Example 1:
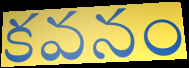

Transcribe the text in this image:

కవనం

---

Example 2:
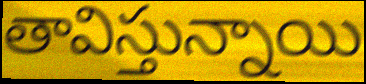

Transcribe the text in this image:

తావిస్తున్నాయి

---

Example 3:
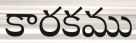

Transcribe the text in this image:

కారకము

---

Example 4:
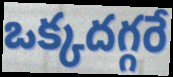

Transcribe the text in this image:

ఒక్కదగ్గరే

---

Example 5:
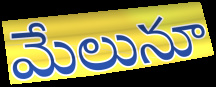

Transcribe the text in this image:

మేలునూ